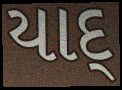
યાદ્